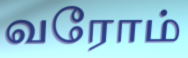
வரோம்